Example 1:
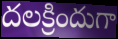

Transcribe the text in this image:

దలక్రిందుగా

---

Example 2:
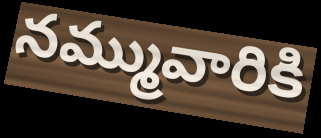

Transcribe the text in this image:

నమ్మువారికి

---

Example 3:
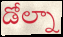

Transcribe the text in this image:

డోల్నా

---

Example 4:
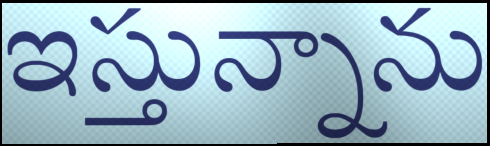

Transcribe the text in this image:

ఇస్తున్నాను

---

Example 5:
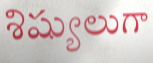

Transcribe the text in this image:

శిష్యులుగా